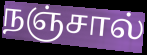
நஞ்சால்